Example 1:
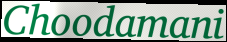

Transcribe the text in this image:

Choodamani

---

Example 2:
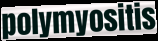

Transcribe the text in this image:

polymyositis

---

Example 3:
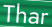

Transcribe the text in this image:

Thar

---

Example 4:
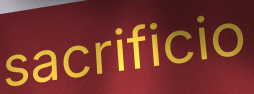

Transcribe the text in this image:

sacrificio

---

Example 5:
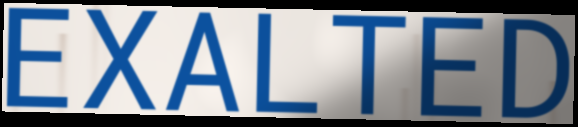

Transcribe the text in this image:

EXALTED